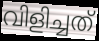
വിളിച്ചത്